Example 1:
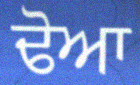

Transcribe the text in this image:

ਢੋਆ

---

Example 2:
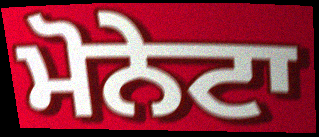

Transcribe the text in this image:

ਮੋਨੇਟਾ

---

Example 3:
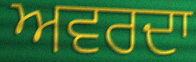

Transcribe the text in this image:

ਅਵਰਦਾ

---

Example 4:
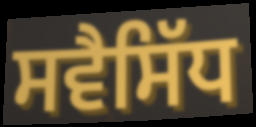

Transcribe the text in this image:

ਸਵੈਸਿੱਧ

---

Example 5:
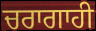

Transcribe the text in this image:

ਚਰਾਗਾਹੀ